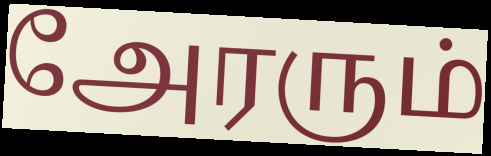
அேரரும்